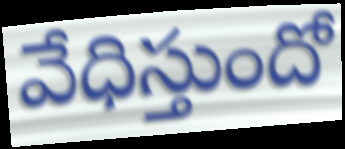
వేధిస్తుందో